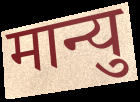
मान्यु